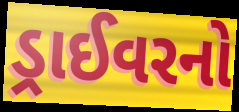
ડ્રાઈવરનો